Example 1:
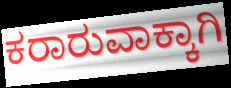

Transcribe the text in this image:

ಕರಾರುವಾಕ್ಕಾಗಿ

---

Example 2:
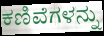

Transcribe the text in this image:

ಕಣಿವೆಗಳನ್ನು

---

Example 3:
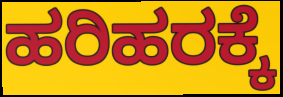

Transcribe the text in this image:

ಹರಿಹರಕ್ಕೆ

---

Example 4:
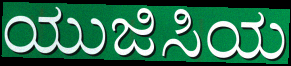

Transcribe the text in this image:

ಯುಜಿಸಿಯ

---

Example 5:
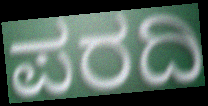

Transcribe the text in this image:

ಪರದಿ